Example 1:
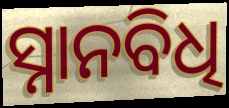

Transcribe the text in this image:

ସ୍ନାନବିଧି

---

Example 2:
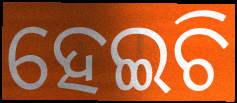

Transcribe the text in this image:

ହେଇଚି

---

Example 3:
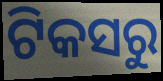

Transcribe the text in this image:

ଟିକସରୁ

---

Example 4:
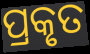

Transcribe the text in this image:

ପ୍ରକୃତ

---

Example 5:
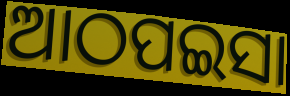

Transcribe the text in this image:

ଆଠପଇସା